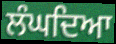
ਲੰਘਦਿਆ